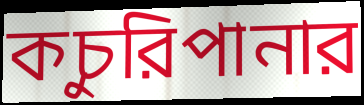
কচুরিপানার